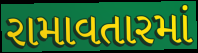
રામાવતારમાં